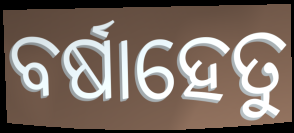
ବର୍ଷାହେତୁ